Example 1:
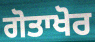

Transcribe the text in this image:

ਗੋਤਾਖੋਰ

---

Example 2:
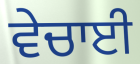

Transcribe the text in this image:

ਵੇਚਾਈ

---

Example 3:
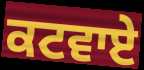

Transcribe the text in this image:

ਕਟਵਾਏ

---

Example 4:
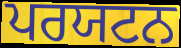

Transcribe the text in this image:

ਪਰਯਟਨ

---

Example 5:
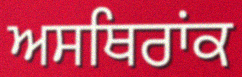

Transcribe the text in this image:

ਅਸਥਿਰਾਂਕ